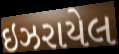
ઇઝરાયેલ